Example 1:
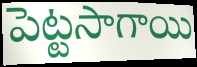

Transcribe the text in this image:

పెట్టసాగాయి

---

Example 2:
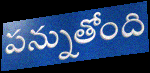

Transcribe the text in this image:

పన్నుతోంది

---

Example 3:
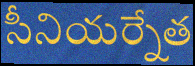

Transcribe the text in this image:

సీనియర్నేత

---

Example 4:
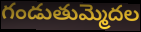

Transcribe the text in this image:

గండుతుమ్మెదల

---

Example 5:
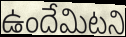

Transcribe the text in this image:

ఉందేమిటని